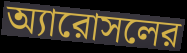
অ্যারোসলের